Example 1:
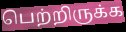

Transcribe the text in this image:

பெற்றிருக்க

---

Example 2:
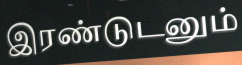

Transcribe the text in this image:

இரண்டுடனும்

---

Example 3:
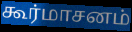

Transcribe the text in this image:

கூர்மாசனம்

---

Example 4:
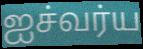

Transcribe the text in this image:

ஐச்வர்ய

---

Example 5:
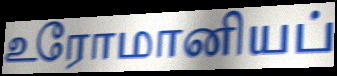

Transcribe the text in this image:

உரோமானியப்